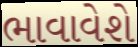
ભાવાવેશે